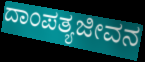
ದಾಂಪತ್ಯಜೀವನ